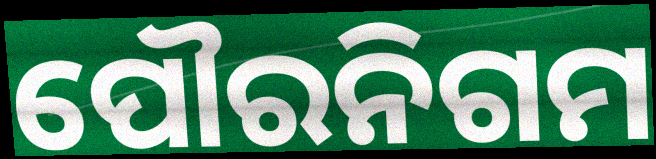
ପୌରନିଗମ